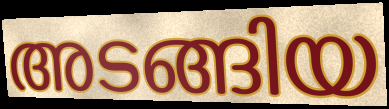
അടങ്ങിയ